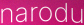
narodu